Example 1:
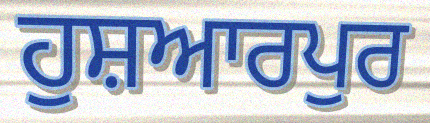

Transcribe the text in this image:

ਹੁਸ਼ਆਰਪੁਰ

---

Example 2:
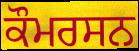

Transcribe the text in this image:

ਕੌਮਰਸਨ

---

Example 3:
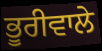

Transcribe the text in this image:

ਭੂਰੀਵਾਲੇ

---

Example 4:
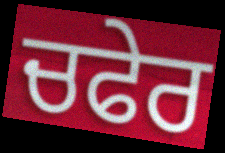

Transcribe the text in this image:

ਚਫੇਰ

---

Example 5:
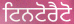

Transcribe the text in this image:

ਟਿਨਟੋਰੈਟੋ